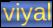
viyal